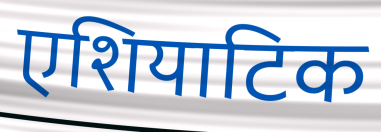
एशियाटिक